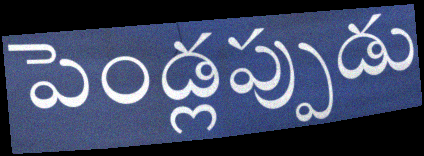
పెండ్లప్పుడు